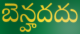
బెన్హదదు